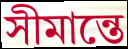
সীমান্তে